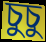
চুচু